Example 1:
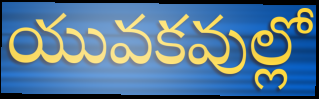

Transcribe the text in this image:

యువకవుల్లో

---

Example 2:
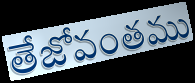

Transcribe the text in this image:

తేజోవంతము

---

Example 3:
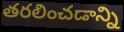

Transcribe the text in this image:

తరలించడాన్ని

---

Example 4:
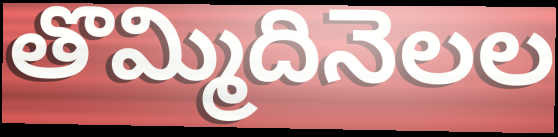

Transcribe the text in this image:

తొమ్మిదినెలల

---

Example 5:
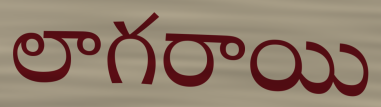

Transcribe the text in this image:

లాగరాయి